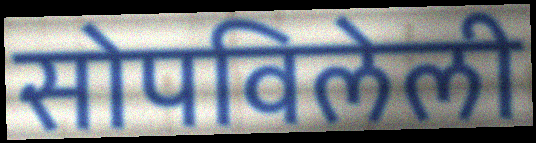
सोपविलेली